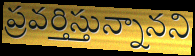
ప్రవర్తిస్తున్నానని